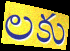
లకు